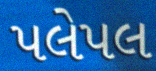
પલેપલ